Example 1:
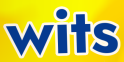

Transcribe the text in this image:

wits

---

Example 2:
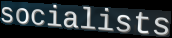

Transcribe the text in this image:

socialists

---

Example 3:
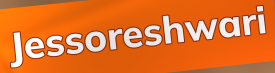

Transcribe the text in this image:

Jessoreshwari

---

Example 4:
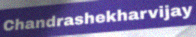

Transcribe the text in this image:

Chandrashekharvijay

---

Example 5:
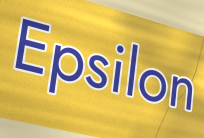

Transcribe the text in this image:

Epsilon